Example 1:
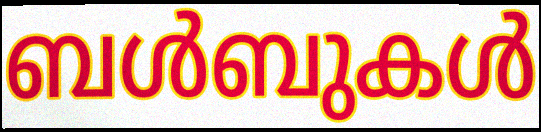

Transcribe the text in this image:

ബൾബുകൾ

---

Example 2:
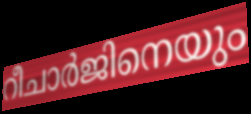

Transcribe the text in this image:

റീചാർജിനെയും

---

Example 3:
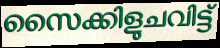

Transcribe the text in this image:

സൈക്കിളുചവിട്ട്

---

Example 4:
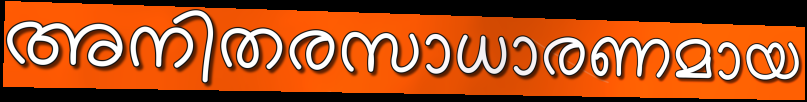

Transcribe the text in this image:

അനിതരസാധാരണമായ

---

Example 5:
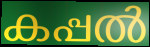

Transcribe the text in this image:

കപ്പൽ